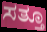
ಸತ್ತೂ